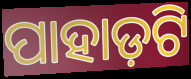
ପାହାଡ଼ଟି